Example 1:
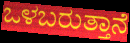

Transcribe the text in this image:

ಒಳಬರುತ್ತಾನೆ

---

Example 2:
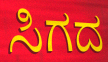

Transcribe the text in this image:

ಸಿಗದ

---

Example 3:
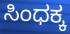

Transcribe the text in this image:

ಸಿಂಧಕ್ಕ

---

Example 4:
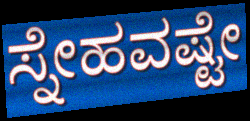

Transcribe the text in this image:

ಸ್ನೇಹವಷ್ಟೇ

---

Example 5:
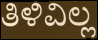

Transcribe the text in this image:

ತಿಳಿವಿಲ್ಲ